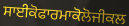
ਸਾਈਕੋਫਾਰਮਾਕੋਲੋਜੀਕਲ